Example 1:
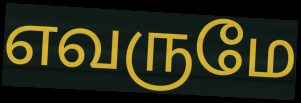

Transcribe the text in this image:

எவருமே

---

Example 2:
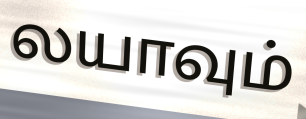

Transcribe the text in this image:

லயாவும்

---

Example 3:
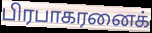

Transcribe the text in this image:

பிரபாகரனைக்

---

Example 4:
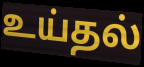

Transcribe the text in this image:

உய்தல்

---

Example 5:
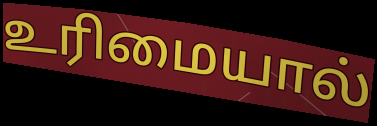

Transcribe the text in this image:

உரிமையால்